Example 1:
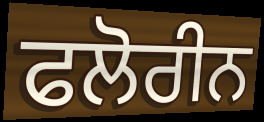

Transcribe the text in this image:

ਫਲੋਰੀਨ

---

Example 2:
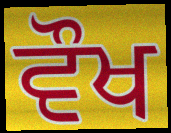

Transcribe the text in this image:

ਵੌਖ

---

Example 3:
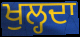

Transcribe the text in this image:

ਖੁਲ੍ਹਦਾ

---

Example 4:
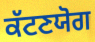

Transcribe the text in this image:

ਕੱਟਣਯੋਗ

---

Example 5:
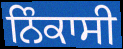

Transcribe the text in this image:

ਨਿੰਕਾਸੀ